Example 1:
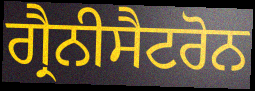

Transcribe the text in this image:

ਗ੍ਰੈਨੀਸੈਟਰੋਨ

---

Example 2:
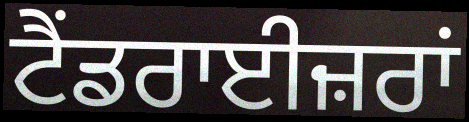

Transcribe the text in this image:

ਟੈਂਡਰਾਈਜ਼ਰਾਂ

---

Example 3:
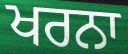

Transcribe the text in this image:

ਖਰਨਾ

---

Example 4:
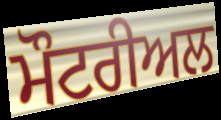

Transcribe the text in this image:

ਮੌਟਰੀਅਲ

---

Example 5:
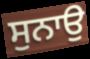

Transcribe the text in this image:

ਸੁਨਾਉ